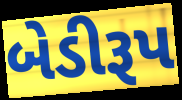
બેડીરૂપ